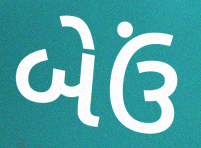
બેઉં